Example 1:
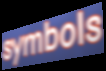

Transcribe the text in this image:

symbols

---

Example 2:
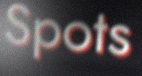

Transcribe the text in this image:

Spots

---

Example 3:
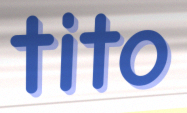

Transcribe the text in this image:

tito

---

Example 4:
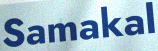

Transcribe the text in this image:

Samakal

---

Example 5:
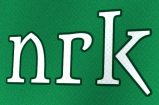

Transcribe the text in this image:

nrk